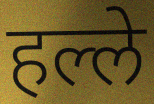
हल्ले